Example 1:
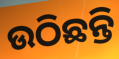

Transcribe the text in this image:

ଉଠିଛନ୍ତି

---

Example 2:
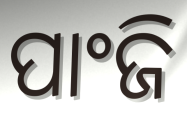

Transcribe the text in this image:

ପାଂଜି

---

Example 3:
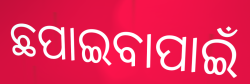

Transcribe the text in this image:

ଛପାଇବାପାଇଁ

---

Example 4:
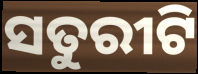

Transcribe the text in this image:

ସତୁରୀଟି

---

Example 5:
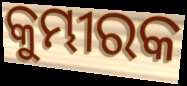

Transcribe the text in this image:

କୁମ୍ଭୀରକ